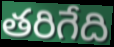
తరిగేది